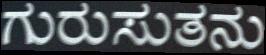
ಗುರುಸುತನು